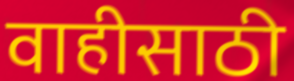
वाहीसाठी